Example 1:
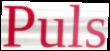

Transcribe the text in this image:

Puls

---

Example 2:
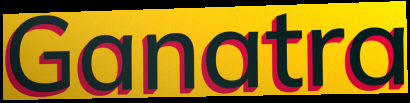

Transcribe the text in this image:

Ganatra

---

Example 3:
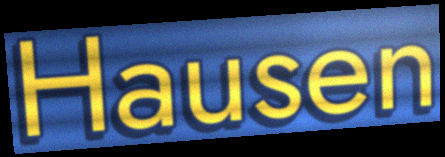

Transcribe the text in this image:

Hausen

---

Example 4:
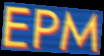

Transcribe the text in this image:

EPM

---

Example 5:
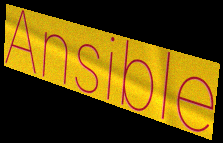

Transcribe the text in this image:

Ansible